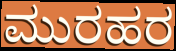
ಮುರಹರ